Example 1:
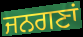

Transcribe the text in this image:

ਜਨਗਣਾਂ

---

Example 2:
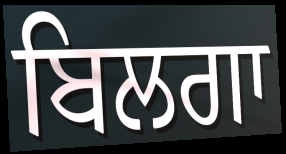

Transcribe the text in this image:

ਬਿਲਗਾ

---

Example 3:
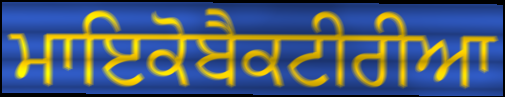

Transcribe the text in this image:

ਮਾਇਕੋਬੈਕਟੀਰੀਆ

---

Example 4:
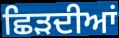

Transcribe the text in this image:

ਛਿੜਦੀਆਂ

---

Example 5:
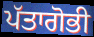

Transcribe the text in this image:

ਪੱਤਾਗੋਭੀ